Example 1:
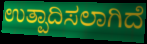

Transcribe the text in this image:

ಉತ್ಪಾದಿಸಲಾಗಿದೆ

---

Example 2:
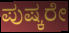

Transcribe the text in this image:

ಪುಷ್ಕರೇ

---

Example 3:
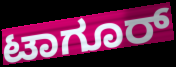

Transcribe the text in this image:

ಟಾಗೂರ್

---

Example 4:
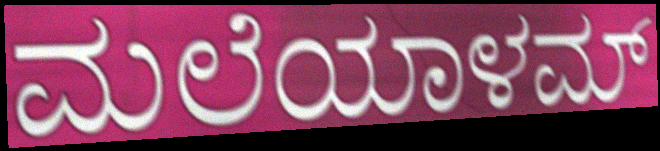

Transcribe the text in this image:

ಮಲೆಯಾಳಮ್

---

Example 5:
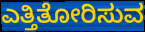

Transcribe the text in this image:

ಎತ್ತಿತೋರಿಸುವ